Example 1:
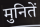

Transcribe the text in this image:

मुनितें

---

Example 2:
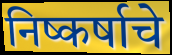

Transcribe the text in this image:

निष्कर्षाचे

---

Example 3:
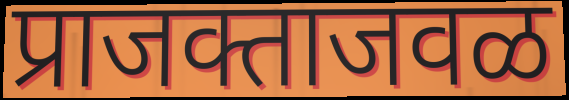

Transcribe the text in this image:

प्राजक्ताजवळ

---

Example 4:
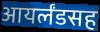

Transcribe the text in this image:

आयर्लंडसह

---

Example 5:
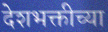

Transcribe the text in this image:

देशभक्तीच्या